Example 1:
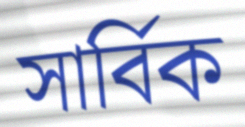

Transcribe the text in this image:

সার্বিক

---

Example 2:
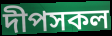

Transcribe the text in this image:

দীপসকল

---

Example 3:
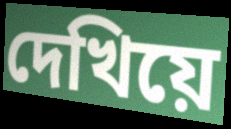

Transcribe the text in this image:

দেখিয়ে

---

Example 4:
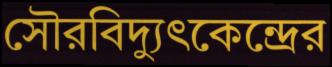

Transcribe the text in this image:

সৌরবিদ্যুৎকেন্দ্রের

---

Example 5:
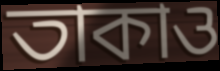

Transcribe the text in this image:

তাকাও